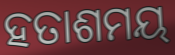
ହତାଶମୟ